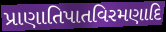
પ્રાણાતિપાતવિરમણાદિ